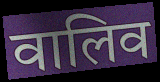
वालिव